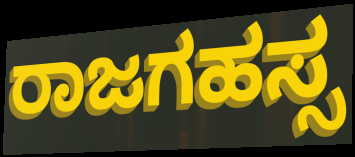
ರಾಜಗಹಸ್ಸ